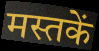
मस्तकें